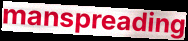
manspreading